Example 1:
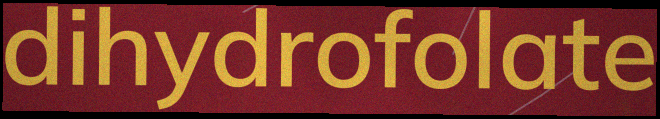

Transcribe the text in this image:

dihydrofolate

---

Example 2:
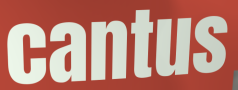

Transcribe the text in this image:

cantus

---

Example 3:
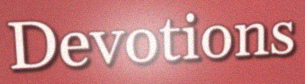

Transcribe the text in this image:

Devotions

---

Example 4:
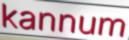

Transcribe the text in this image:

kannum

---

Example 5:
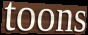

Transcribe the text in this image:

toons